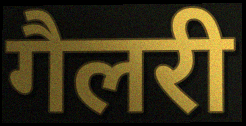
गैलरी